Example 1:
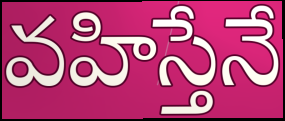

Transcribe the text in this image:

వహిస్తేనే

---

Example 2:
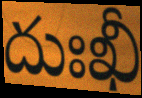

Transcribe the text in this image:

దుఃఖీ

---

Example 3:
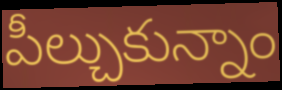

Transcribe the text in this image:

పీల్చుకున్నాం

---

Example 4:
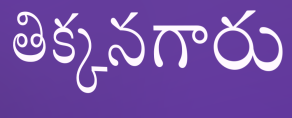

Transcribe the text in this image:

తిక్కనగారు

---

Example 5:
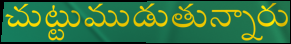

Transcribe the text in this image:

చుట్టుముడుతున్నారు